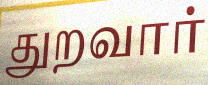
துறவார்